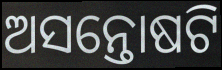
ଅସନ୍ତୋଷଟି